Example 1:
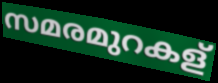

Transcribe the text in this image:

സമരമുറകള്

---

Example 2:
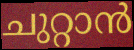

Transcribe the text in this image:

ചുറ്റാൻ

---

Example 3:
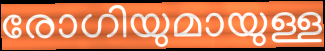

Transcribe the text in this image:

രോഗിയുമായുള്ള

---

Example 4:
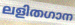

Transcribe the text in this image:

ലളിതഗാന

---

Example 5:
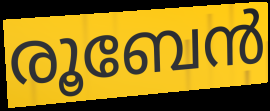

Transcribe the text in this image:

രൂബേൻ